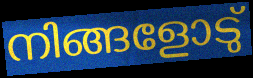
നിങ്ങളോടു്